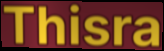
Thisra